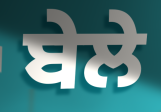
ਬੇਲੇ